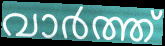
വാർത്ത്